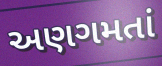
અણગમતાં